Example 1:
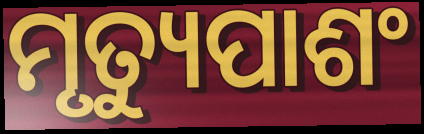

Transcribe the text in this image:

ମୃତ୍ୟୁପାଶଂ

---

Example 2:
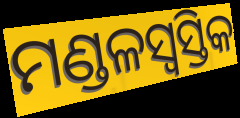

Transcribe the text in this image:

ମଣ୍ଡଳସ୍ୱସ୍ତିକ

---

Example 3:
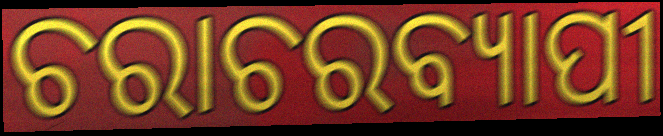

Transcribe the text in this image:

ଚରାଚରବ୍ୟାପୀ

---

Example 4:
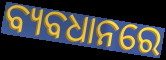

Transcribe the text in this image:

ବ୍ୟବଧାନରେ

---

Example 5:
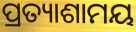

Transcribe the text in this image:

ପ୍ରତ୍ୟାଶାମୟ